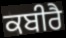
ਕਬੀਰੈ